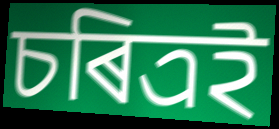
চৰিত্ৰই